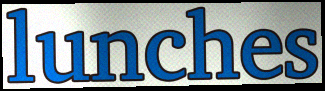
lunches